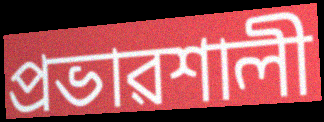
প্ৰভাৱশালী